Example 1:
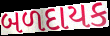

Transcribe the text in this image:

બળદાયક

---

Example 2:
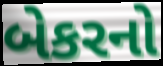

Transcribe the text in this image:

બેકરનો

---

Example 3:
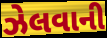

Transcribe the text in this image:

ઝેલવાની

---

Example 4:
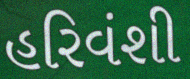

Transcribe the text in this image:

હરિવંશી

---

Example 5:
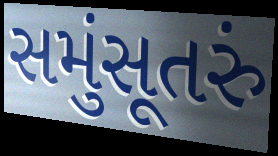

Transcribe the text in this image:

સમુંસૂતરું